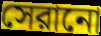
সেরানো